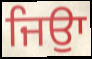
ਜਿਉਾ